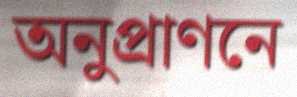
অনুপ্রাণনে